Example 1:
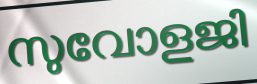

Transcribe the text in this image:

സുവോളജി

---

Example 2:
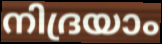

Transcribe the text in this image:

നിദ്രയാം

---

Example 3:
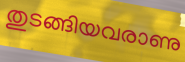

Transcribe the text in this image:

തുടങ്ങിയവരാണു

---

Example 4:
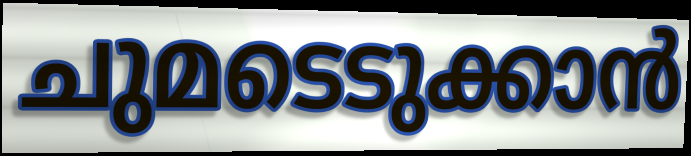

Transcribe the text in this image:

ചുമടെടുക്കാൻ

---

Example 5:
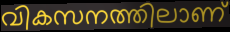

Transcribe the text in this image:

വികസനത്തിലാണ്